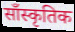
साँस्कृतिक